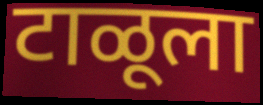
टाळूला